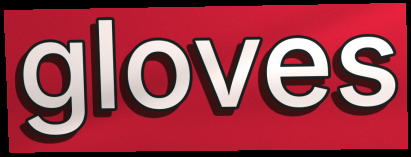
gloves